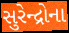
સુરેન્દ્રોના